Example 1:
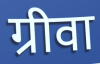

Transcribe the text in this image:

ग्रीवा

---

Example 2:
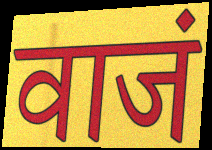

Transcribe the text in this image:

वाजं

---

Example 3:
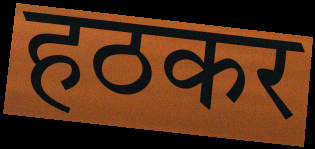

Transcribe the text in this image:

हठकर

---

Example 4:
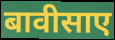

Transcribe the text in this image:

बावीसाए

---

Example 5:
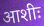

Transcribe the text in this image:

आशीः